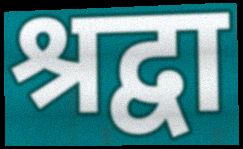
श्रद्वा